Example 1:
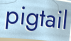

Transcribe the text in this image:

pigtail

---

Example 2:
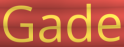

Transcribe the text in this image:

Gade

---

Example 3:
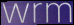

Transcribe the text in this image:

wrm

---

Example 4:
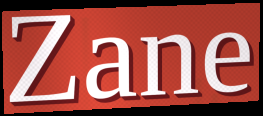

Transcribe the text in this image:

Zane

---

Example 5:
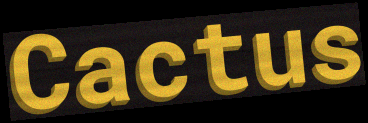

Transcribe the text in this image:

Cactus